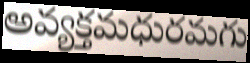
అవ్యక్తమధురమగు